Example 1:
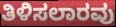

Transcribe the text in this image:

ತಿಳಿಸಲಾರವು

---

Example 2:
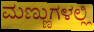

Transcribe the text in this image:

ಮಣ್ಣುಗಳಲ್ಲಿ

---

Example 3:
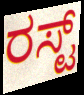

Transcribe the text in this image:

ರಸ್ಟ್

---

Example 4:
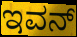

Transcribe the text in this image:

ಇವನ್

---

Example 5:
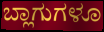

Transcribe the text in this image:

ಬ್ಲಾಗುಗಳೂ